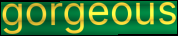
gorgeous